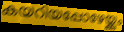
കയറിയപ്പോഴേയ്ക്കും